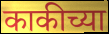
काकीच्या